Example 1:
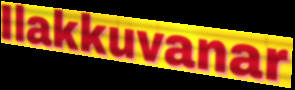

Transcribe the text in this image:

Ilakkuvanar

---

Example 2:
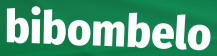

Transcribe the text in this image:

bibombelo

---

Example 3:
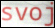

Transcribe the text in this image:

svoj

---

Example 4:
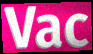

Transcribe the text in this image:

Vac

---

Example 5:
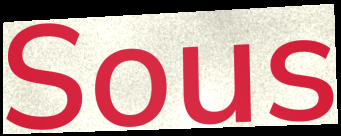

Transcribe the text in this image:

Sous